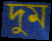
দুম